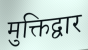
मुक्तिद्वार